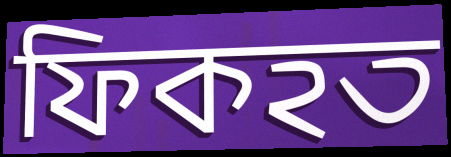
ফিকহত